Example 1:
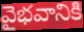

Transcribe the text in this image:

వైభవానికి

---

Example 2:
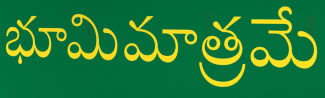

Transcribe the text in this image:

భూమిమాత్రమే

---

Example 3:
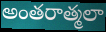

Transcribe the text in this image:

అంతరాత్మలా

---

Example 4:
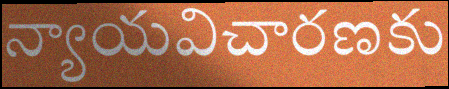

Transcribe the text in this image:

న్యాయవిచారణకు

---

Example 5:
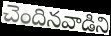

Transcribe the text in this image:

చెందినవాడిని